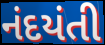
નંદયંતી